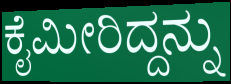
ಕೈಮೀರಿದ್ದನ್ನು